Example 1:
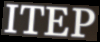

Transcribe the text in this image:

ITEP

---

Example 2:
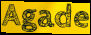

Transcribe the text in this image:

Agade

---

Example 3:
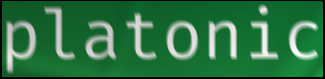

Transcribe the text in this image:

platonic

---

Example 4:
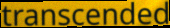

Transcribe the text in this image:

transcended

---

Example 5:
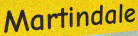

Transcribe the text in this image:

Martindale